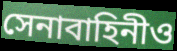
সেনাবাহিনীও